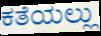
ಕತೆಯಲ್ಲು